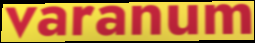
varanum